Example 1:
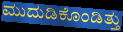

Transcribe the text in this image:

ಮುದುಡಿಕೊಂಡಿತ್ತು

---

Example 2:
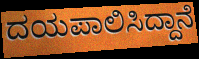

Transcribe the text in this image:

ದಯಪಾಲಿಸಿದ್ದಾನೆ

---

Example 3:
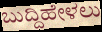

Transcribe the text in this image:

ಬುದ್ದಿಹೇಳಲು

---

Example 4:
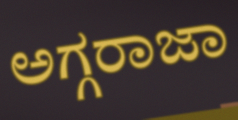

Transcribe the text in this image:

ಅಗ್ಗರಾಜಾ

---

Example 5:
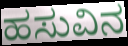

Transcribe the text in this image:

ಹಸುವಿನ